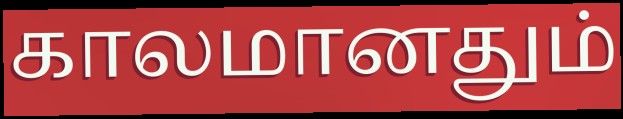
காலமானதும்